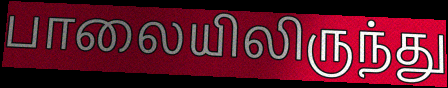
பாலையிலிருந்து